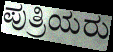
ಪುತ್ರಿಯರು